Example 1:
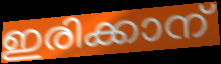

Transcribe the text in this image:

ഇരിക്കാന്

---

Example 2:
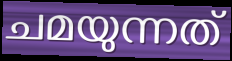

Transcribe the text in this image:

ചമയുന്നത്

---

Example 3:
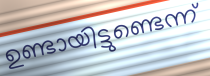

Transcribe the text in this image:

ഉണ്ടായിട്ടുണ്ടെന്ന്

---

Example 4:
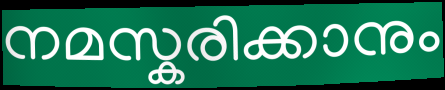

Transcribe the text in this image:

നമസ്കരിക്കാനും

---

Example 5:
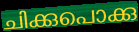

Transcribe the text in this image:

ചിക്കുപൊക്കു